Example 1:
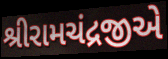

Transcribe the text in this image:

શ્રીરામચંદ્રજીએ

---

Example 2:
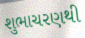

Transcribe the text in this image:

શુભાચરણથી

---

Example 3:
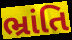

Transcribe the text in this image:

ભ્રાંતિ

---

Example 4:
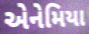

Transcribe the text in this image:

એનેમિયા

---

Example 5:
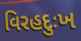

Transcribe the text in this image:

વિરહદુઃખ